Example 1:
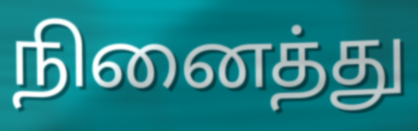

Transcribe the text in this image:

நினைத்து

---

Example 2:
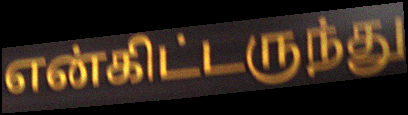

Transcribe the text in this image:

என்கிட்டருந்து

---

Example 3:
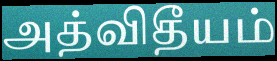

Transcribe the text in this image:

அத்விதீயம்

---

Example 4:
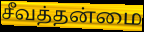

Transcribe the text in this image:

சீவத்தன்மை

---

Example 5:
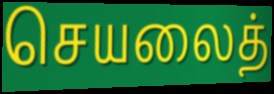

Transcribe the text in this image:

செயலைத்